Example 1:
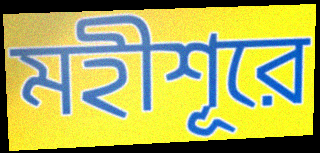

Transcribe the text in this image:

মহীশূরে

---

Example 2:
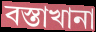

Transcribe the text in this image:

বস্তাখানা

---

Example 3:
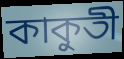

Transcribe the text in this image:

কাকুতী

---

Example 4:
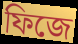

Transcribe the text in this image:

ফিজে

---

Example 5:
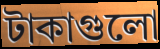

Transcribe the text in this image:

টাকাগুলো